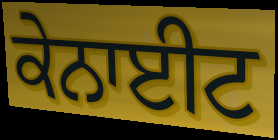
ਕੇਨਾਈਟ